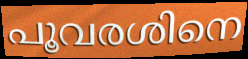
പൂവരശിനെ